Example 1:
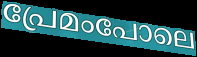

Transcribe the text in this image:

പ്രേമംപോലെ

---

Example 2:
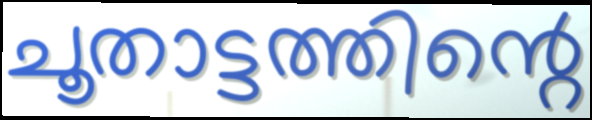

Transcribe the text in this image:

ചൂതാട്ടത്തിന്റെ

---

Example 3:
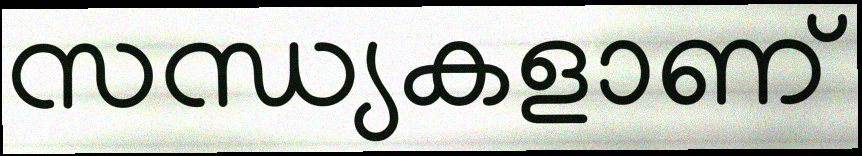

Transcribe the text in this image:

സന്ധ്യകളാണ്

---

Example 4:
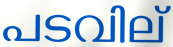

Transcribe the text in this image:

പടവില്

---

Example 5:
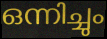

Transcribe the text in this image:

ഒന്നിച്ചും